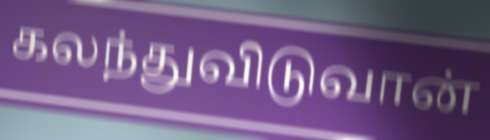
கலந்துவிடுவான்